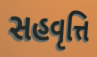
સહવૃત્તિ